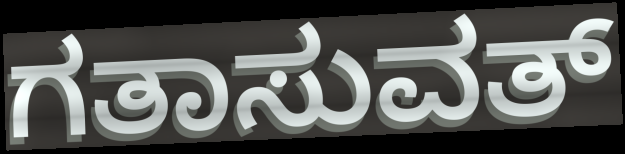
ಗತಾಸುವತ್